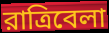
রাত্রিবেলা